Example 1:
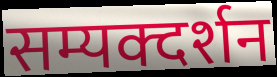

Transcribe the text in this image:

सम्यक्दर्शन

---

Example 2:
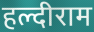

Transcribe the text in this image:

हल्दीराम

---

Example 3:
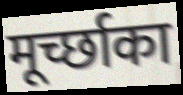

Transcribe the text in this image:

मूर्च्छाका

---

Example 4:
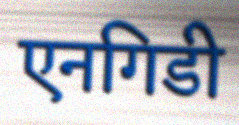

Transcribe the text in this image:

एनगिडी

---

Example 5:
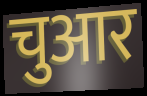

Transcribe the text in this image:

चुआर